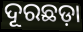
ଦୂରଛଡ଼ା